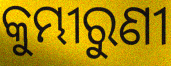
କୁମ୍ଭୀରୁଣୀ